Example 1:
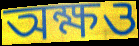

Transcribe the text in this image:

অক্ষও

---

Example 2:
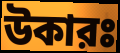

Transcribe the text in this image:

উকারঃ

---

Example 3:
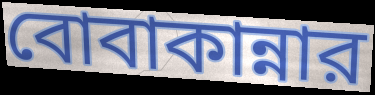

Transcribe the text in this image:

বোবাকান্নার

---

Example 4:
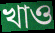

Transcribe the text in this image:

খাও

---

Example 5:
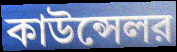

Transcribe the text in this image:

কাউন্সেলর